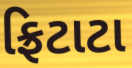
ફ્રિટાટા